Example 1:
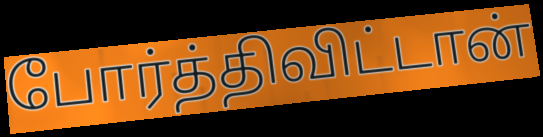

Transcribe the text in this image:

போர்த்திவிட்டான்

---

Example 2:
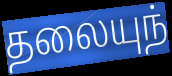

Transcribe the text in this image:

தலையுந்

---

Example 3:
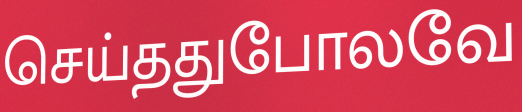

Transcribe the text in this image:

செய்ததுபோலவே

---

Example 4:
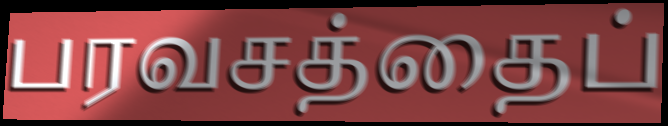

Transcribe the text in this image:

பரவசத்தைப்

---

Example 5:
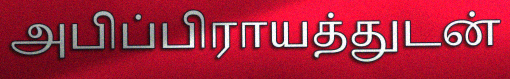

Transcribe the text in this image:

அபிப்பிராயத்துடன்